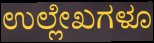
ಉಲ್ಲೇಖಗಳೂ